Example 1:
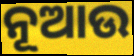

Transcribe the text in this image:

ନୂଆଉ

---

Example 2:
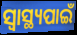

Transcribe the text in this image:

ସ୍ଵାସ୍ଥ୍ୟପାଇଁ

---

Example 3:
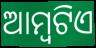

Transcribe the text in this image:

ଆମ୍ବଟିଏ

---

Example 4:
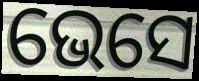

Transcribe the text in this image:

ଭେସେ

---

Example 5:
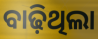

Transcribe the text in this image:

ବାଢ଼ିଥିଲା